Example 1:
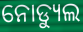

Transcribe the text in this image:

ନୋଡ୍ୟୁଲ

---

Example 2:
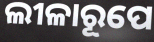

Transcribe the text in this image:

ଲୀଳାରୂପେ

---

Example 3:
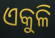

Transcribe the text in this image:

ଏକୁଳି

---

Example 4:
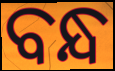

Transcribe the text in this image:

ବନ୍ଧ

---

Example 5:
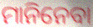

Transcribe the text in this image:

ମାନିନେବା